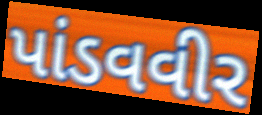
પાંડવવીર